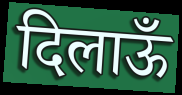
दिलाऊँ